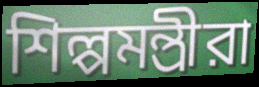
শিল্পমন্ত্রীরা